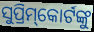
ସୁପ୍ରିମ୍‌କୋର୍ଟଙ୍କୁ